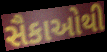
સૈકાઓથી